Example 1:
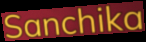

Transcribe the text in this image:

Sanchika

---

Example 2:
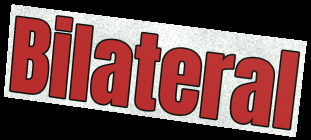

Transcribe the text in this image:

Bilateral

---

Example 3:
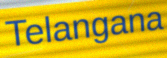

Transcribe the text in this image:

Telangana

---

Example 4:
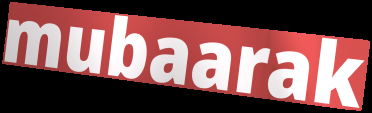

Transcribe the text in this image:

mubaarak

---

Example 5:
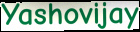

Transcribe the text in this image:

Yashovijay